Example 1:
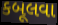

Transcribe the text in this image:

કબૂલવા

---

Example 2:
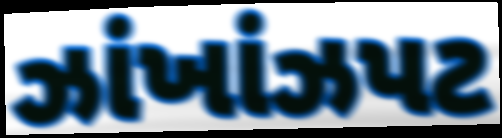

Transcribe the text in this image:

ઝાંખાંઝપટ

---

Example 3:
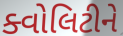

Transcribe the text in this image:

ક્વોલિટીને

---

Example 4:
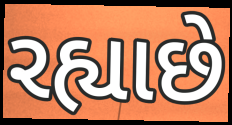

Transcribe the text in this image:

રહ્યાછે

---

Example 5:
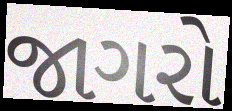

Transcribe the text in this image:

જાગરો